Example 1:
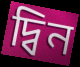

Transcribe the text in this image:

দ্বিন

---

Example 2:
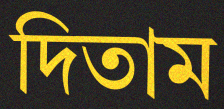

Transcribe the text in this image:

দিতাম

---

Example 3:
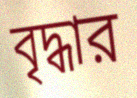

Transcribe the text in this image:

বৃদ্ধার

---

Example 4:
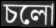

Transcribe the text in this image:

চলো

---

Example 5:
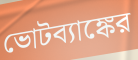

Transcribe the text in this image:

ভোটব্যাঙ্কের